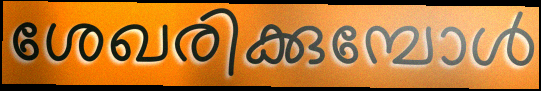
ശേഖരിക്കുമ്പോൾ